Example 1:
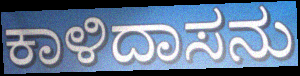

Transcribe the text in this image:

ಕಾಳಿದಾಸನು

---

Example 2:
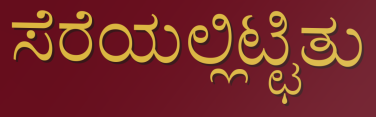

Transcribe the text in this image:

ಸೆರೆಯಲ್ಲಿಟ್ಟಿತು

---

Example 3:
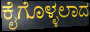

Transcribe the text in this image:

ಕೈಗೊಳ್ಳಲಾದ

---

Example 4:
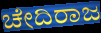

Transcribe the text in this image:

ಚೇದಿರಾಜ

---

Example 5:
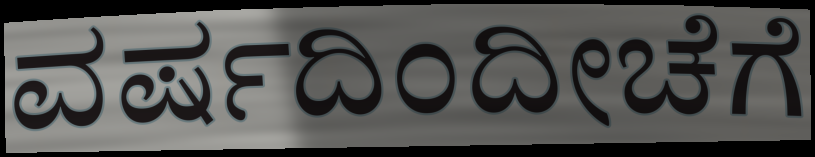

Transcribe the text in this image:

ವರ್ಷದಿಂದೀಚೆಗೆ